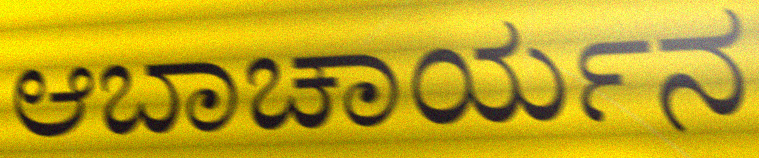
ಆಬಾಚಾರ್ಯನ